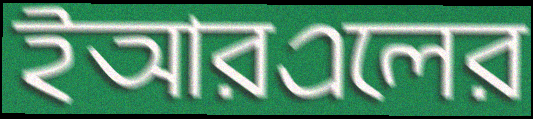
ইআরএলের